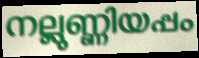
നല്ലുണ്ണിയപ്പം